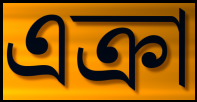
এক্রা